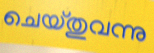
ചെയ്തുവന്നു